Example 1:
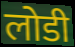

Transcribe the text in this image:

लोडी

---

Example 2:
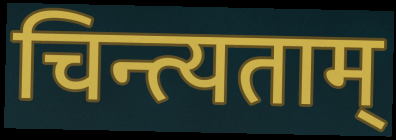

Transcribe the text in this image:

चिन्त्यताम्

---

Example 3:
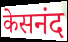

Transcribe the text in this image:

केसनंद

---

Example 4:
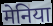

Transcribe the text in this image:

मेनिया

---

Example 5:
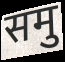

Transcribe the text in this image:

समु